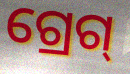
ଗ୍ରେଗ୍